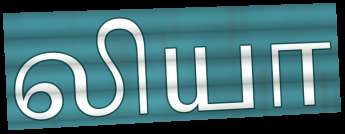
லியா